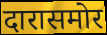
दारासमोर